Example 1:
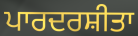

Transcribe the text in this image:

ਪਾਰਦਰਸ਼ੀਤਾ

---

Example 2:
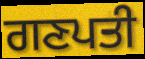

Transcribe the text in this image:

ਗਣਪਤੀ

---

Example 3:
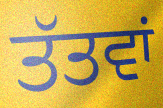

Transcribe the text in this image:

ਤੱਤਵਾਂ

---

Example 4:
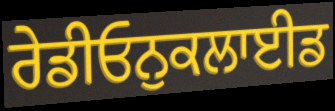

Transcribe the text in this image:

ਰੇਡੀਓਨੁਕਲਾਈਡ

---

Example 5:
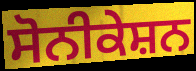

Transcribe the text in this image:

ਸੋਨੀਕੇਸ਼ਨ